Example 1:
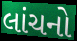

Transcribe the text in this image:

લાંચનો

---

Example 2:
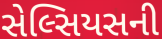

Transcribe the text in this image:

સેલ્સિયસની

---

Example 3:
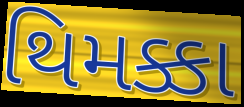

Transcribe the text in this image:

થિમક્કા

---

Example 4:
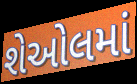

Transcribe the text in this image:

શેઓલમાં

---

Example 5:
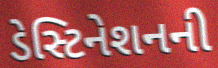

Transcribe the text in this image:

ડેસ્ટિનેશનની